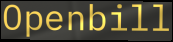
Openbill